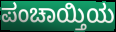
ಪಂಚಾಯ್ತಿಯ